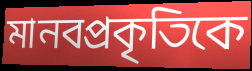
মানবপ্রকৃতিকে